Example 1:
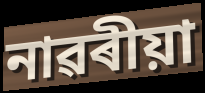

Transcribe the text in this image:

নাৱৰীয়া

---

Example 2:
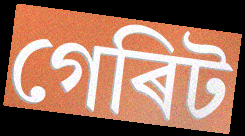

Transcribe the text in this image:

গেৰিট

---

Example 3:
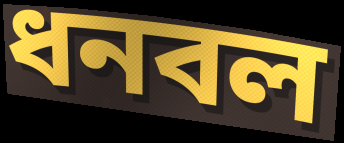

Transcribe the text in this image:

ধনবল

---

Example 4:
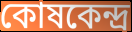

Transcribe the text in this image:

কোষকেন্দ্ৰ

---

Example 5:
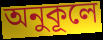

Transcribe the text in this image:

অনুকূলে